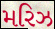
મરિઝ